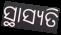
ସ୍ଥାସ୍ୟତି